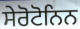
ਸੇਰੋਟੋਨਿਨ